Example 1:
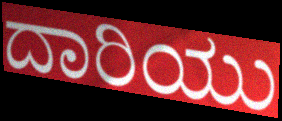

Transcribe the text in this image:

ದಾರಿಯು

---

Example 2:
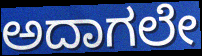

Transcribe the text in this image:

ಅದಾಗಲೇ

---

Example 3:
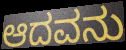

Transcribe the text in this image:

ಆದವನು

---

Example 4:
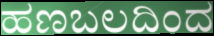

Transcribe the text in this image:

ಹಣಬಲದಿಂದ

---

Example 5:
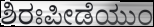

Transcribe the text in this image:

ಶಿರಃಪೀಡೆಯುಂ